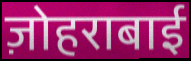
ज़ोहराबाई